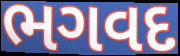
ભગવદ